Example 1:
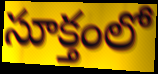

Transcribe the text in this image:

సూక్తంలో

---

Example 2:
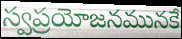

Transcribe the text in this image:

స్వప్రయోజనమునకే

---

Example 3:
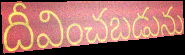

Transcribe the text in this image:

దీవించబడును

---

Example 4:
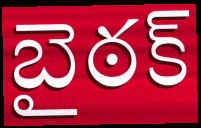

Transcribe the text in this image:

బైఠక్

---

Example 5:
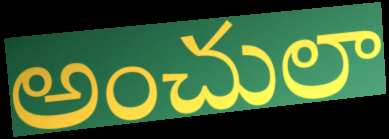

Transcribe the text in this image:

అంచులా